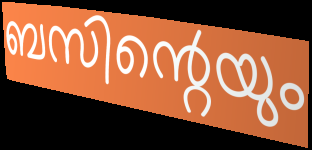
ബസിന്റെയും